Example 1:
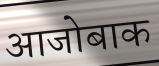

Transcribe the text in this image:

आजोबाक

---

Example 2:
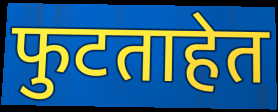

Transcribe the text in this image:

फुटताहेत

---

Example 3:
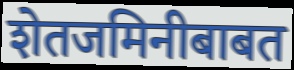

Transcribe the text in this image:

शेतजमिनीबाबत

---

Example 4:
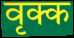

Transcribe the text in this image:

वृक्क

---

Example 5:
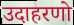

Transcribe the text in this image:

उदाहरणो